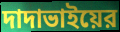
দাদাভাইয়ের